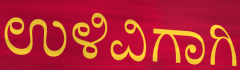
ಉಳಿವಿಗಾಗಿ